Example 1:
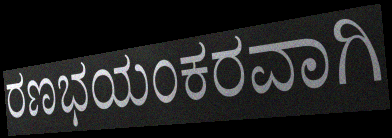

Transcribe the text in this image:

ರಣಭಯಂಕರವಾಗಿ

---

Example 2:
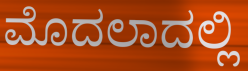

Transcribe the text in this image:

ಮೊದಲಾದಲ್ಲಿ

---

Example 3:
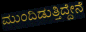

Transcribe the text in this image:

ಮುಂದಿಡುತ್ತಿದ್ದೇನೆ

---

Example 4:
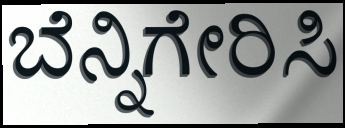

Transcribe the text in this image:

ಬೆನ್ನಿಗೇರಿಸಿ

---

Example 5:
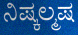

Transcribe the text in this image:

ನಿಷ್ಕಲ್ಮಷ